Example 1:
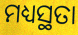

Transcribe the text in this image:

ମଧ୍ୟସ୍ଥତା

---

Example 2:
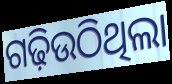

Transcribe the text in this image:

ଗଢ଼ିଉଠିଥିଲା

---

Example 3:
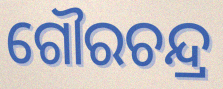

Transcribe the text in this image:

ଗୌରଚନ୍ଦ୍ର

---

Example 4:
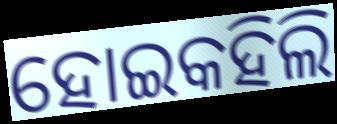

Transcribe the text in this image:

ହୋଇକହିଲି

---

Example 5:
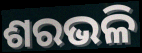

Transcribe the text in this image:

ଶରଭଳି